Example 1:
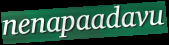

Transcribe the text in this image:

nenapaadavu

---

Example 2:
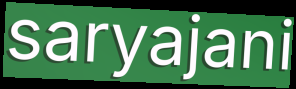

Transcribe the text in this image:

saryajani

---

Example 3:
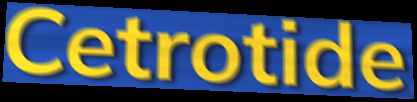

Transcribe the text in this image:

Cetrotide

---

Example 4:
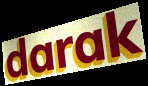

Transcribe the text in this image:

darak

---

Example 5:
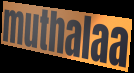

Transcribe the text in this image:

muthalaa